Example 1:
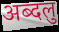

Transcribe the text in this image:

अब्दलु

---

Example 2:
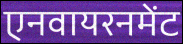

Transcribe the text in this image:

एनवायरनमेंट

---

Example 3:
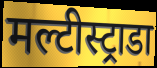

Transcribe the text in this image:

मल्टीस्ट्राडा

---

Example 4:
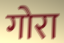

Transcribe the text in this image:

गोरा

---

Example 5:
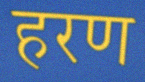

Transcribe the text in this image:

हरण